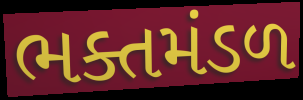
ભક્તમંડળ